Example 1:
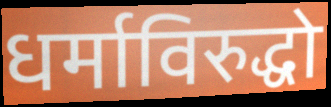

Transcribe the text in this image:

धर्माविरुद्धो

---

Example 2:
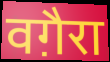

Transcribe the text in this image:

वग़ैरा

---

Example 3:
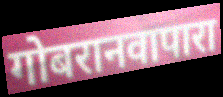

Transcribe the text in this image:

गोबरानवापारा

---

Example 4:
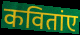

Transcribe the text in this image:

कवितांए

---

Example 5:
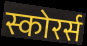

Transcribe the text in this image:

स्कोरर्स